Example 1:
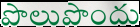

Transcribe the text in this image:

పొలుపొందు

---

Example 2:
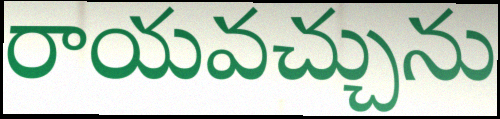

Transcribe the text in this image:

రాయవచ్చును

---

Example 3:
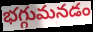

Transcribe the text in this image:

భగ్గుమనడం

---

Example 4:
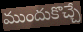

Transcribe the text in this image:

ముందుకొచ్చే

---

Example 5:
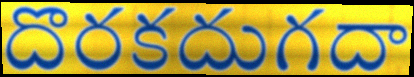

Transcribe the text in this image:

దొరకదుగదా